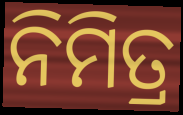
ନିମିତ୍ର